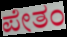
ಪೇತಂ